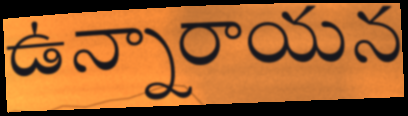
ఉన్నారాయన